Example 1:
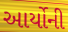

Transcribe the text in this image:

આર્યોની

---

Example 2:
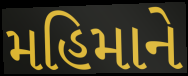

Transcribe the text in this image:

મહિમાને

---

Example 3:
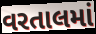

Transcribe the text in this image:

વરતાલમાં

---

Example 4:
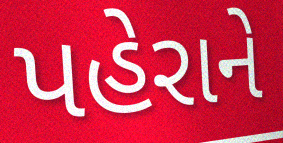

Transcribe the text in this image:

પહેરાને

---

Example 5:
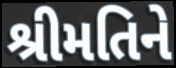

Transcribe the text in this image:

શ્રીમતિને